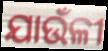
ଯାଉଁଳୀ